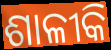
ଶାଳୀକି